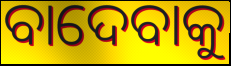
ବାଦେବାକୁ